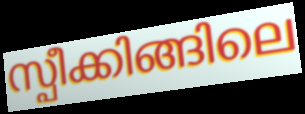
സ്പീക്കിങ്ങിലെ